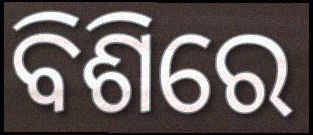
ବିଶିରେ